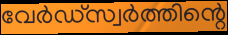
വേർഡ്സ്വർത്തിന്റെ